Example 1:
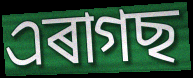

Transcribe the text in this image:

এৰাগছ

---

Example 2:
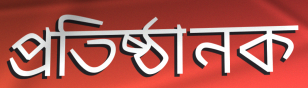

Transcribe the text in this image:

প্ৰতিষ্ঠানক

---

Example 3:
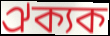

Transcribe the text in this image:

ঐক্যক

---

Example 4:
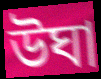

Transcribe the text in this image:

উঘা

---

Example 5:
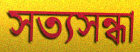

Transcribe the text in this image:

সত্যসন্ধা